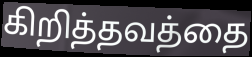
கிறித்தவத்தை